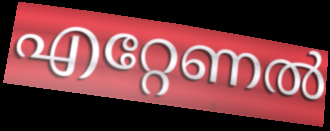
എറ്റേണൽ